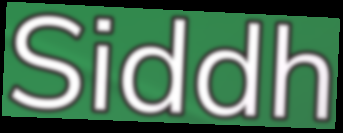
Siddh